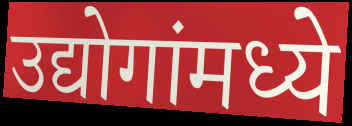
उद्योगांमध्ये